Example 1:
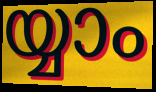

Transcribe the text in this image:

യ്യാം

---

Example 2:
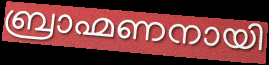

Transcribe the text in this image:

ബ്രാഹ്മണനായി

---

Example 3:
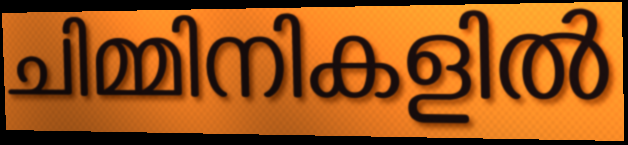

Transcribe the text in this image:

ചിമ്മിനികളിൽ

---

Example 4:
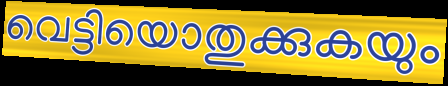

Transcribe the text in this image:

വെട്ടിയൊതുക്കുകയും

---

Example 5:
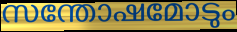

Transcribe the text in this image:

സന്തോഷമോടും